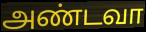
அண்டவா